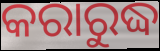
କରାରୁଦ୍ଧ